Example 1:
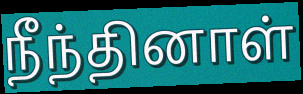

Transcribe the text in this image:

நீந்தினாள்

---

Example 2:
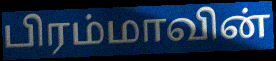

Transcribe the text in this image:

பிரம்மாவின்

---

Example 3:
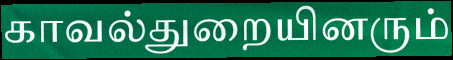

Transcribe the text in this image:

காவல்துறையினரும்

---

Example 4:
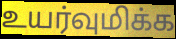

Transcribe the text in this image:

உயர்வுமிக்க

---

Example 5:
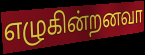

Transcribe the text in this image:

எழுகின்றனவா